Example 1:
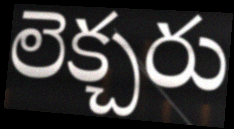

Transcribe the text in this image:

లెక్చరు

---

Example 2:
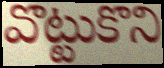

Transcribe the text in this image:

వొట్టుకొని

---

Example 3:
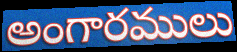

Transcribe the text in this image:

అంగారములు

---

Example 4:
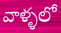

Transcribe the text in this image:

వాళ్ళలో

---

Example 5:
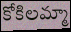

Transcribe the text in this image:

కోకిలమ్మా